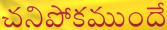
చనిపోకముందే